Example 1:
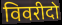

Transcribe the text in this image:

विवरीदो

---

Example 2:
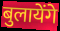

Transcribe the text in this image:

बुलायेंगे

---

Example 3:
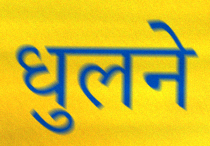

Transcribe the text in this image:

धुलने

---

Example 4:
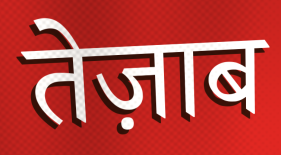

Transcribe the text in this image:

तेज़ाब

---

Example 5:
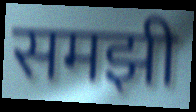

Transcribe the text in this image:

समझी